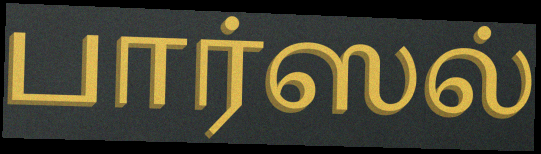
பார்ஸல்